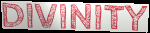
DIVINITY